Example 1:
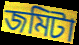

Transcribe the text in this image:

জমিটা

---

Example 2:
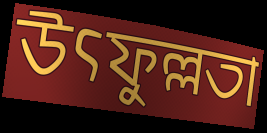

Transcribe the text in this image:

উৎফুল্লতা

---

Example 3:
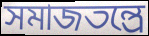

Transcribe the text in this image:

সমাজতন্ত্রে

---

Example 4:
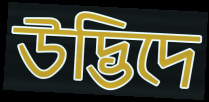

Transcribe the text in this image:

উদ্ভিদে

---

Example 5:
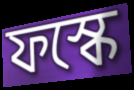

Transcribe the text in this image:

ফস্কে